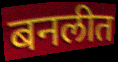
बनलीत